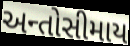
અન્તોસીમાય